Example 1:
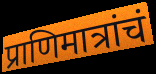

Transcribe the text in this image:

प्राणिमात्रांचं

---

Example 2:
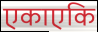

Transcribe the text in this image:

एकाएकि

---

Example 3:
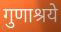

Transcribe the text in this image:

गुणाश्रये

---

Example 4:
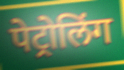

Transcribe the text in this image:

पेट्रोलिंग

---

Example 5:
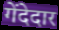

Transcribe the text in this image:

गेंदेदार